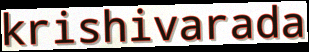
krishivarada